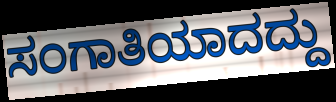
ಸಂಗಾತಿಯಾದದ್ದು